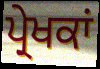
ਪ੍ਰੇਖਕਾਂ